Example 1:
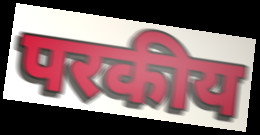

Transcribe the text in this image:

परकीय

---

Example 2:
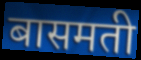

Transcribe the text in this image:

बासमती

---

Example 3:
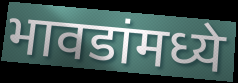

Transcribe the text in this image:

भावडांमध्ये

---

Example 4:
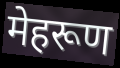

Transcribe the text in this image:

मेहरूण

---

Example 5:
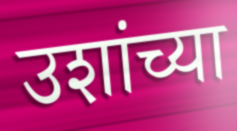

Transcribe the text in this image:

उशांच्या